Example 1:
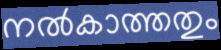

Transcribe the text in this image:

നൽകാത്തതും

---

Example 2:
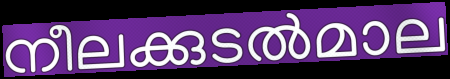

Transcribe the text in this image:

നീലക്കുടൽമാല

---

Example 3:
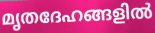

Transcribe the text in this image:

മൃതദേഹങ്ങളിൽ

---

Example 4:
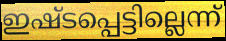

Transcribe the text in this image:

ഇഷ്ടപ്പെട്ടില്ലെന്ന്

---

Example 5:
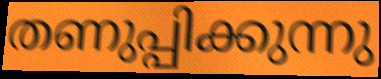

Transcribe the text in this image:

തണുപ്പിക്കുന്നു